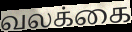
வலக்கை